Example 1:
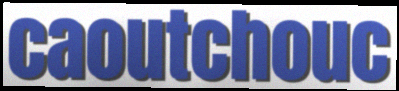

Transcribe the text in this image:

caoutchouc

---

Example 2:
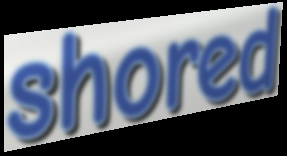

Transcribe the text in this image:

shored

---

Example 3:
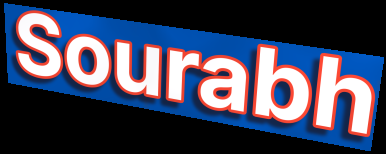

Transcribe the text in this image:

Sourabh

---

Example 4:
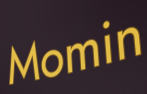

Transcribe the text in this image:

Momin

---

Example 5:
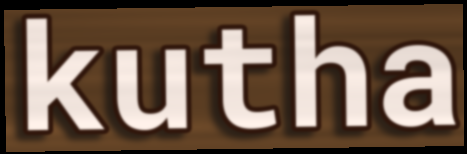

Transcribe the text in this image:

kutha